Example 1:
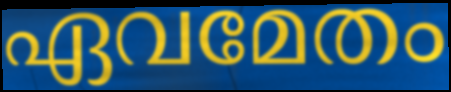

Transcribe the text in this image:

ഏവമേതം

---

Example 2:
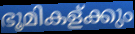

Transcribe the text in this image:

ഭൂമികള്ക്കും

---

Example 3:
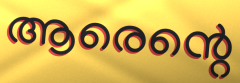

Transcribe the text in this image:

ആരെന്റെ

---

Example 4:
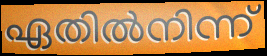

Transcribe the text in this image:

ഏതിൽനിന്ന്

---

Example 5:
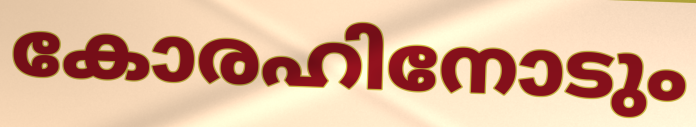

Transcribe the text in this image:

കോരഹിനോടും